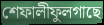
শেফালীফুলগাছে